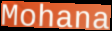
Mohana